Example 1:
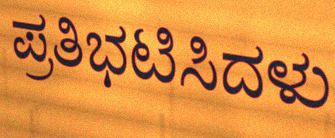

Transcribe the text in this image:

ಪ್ರತಿಭಟಿಸಿದಳು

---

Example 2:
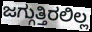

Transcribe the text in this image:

ಜಗ್ಗುತ್ತಿರಲಿಲ್ಲ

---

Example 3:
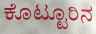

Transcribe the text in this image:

ಕೊಟ್ಟೂರಿನ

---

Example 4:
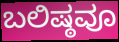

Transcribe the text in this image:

ಬಲಿಷ್ಠವೂ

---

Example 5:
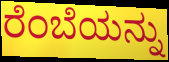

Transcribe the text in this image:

ರೆಂಬೆಯನ್ನು